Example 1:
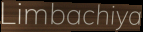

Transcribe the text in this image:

Limbachiya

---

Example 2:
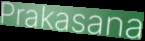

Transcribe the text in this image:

Prakasana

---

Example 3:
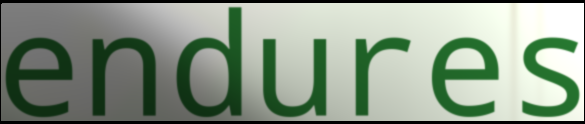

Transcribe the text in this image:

endures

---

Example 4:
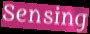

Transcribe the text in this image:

Sensing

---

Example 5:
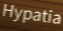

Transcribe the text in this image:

Hypatia